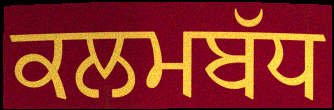
ਕਲਮਬੱਧ